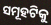
ସମୂହଟିକୁ